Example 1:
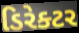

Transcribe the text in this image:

ડિરેક્ટર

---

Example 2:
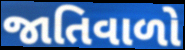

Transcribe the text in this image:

જાતિવાળો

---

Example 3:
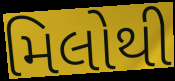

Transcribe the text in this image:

મિલોથી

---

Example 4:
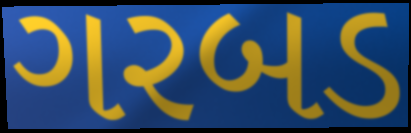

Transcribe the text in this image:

ગરબડ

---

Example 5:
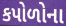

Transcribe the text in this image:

કપોળોના